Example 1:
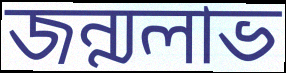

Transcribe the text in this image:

জন্মলাভ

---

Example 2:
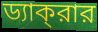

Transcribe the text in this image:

ড্যাক্‌রার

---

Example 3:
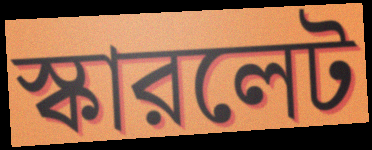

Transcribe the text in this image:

স্কারলেট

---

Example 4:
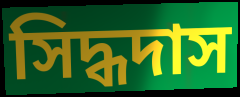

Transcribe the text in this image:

সিদ্ধদাস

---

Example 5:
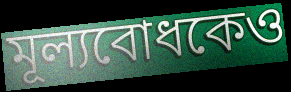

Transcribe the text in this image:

মূল্যবোধকেও